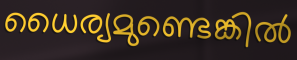
ധൈര്യമുണ്ടെങ്കിൽ